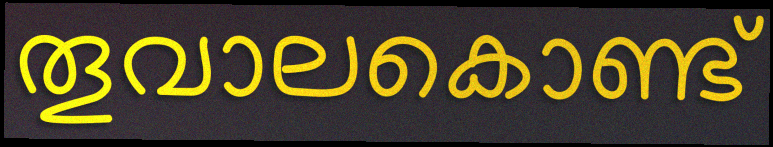
തൂവാലകൊണ്ട്